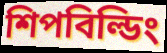
শিপবিল্ডিং